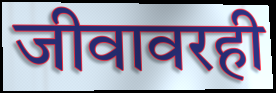
जीवावरही